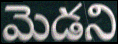
మెడని